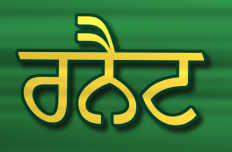
ਰਨੈਟ